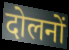
दोलनों